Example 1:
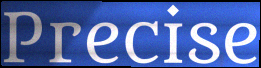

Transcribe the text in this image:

Precise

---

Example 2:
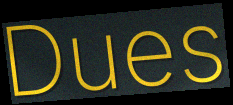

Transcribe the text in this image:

Dues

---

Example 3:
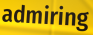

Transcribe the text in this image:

admiring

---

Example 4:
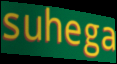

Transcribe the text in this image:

suhega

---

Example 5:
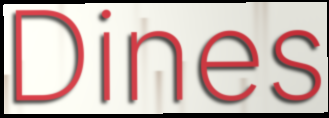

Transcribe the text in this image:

Dines